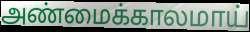
அண்மைக்காலமாய்